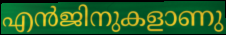
എൻജിനുകളാണു